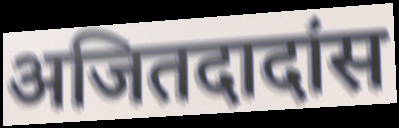
अजितदादांस